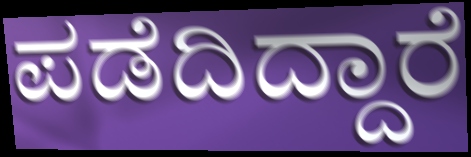
ಪಡೆದಿದ್ದಾರೆ